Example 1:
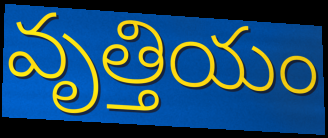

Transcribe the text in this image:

వృత్తియం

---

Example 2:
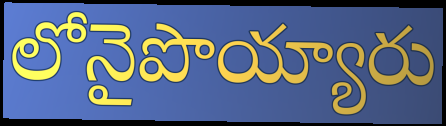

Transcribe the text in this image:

లోనైపొయ్యారు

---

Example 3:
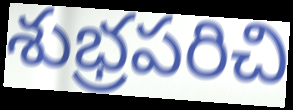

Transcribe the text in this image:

శుభ్రపరిచి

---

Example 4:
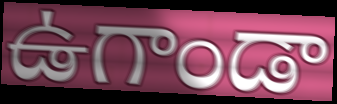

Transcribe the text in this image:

ఉగాండా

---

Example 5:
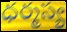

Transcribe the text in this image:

ధర్మస్య